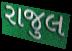
રાજુલ